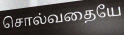
சொல்வதையே